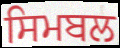
ਸਿਮਬਲ